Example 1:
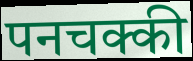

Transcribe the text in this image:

पनचक्की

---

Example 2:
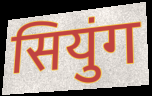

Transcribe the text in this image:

सियुंग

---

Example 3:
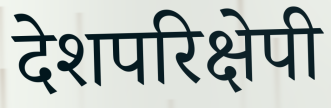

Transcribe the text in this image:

देशपरिक्षेपी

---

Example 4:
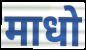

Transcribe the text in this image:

माधो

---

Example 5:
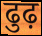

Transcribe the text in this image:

ढुढ़